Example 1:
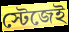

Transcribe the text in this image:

স্টেজেই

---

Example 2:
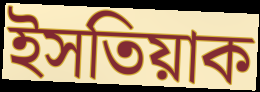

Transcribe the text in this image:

ইসতিয়াক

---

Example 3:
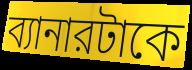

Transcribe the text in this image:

ব্যানারটাকে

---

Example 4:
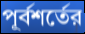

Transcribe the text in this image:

পূর্বশর্তের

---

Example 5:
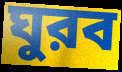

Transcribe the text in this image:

ঘুরব